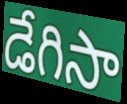
డేగిసా